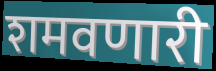
शमवणारी